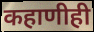
कहाणीही